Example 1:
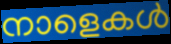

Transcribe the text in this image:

നാളെകൾ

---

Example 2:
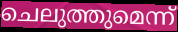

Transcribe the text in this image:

ചെലുത്തുമെന്ന്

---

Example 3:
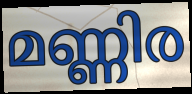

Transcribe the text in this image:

മണ്ണിര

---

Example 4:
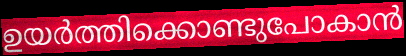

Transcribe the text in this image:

ഉയർത്തിക്കൊണ്ടുപോകാൻ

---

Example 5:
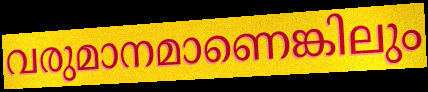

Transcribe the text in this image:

വരുമാനമാണെങ്കിലും